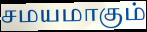
சமயமாகும்